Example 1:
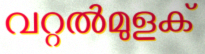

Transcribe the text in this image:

വറ്റൽമുളക്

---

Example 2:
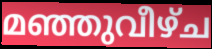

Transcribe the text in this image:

മഞ്ഞുവീഴ്ച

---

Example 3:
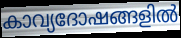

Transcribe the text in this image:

കാവ്യദോഷങ്ങളിൽ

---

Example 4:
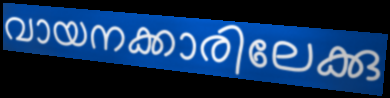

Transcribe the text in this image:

വായനക്കാരിലേക്കു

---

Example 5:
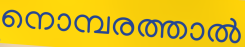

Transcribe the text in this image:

നൊമ്പരത്താൽ